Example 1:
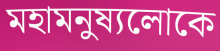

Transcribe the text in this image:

মহামনুষ্যলোকে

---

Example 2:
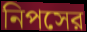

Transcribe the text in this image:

নিপসের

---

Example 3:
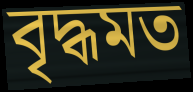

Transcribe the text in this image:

বৃদ্ধমত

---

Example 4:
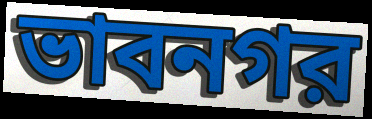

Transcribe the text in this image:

ভাবনগর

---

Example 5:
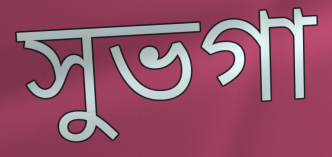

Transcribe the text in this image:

সুভগা